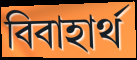
বিবাহার্থ